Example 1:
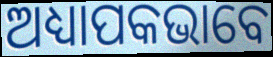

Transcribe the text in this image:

ଅଧ୍ୟାପକଭାବେ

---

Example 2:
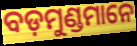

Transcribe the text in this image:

ବଡ଼ମୁଣ୍ଡମାନେ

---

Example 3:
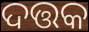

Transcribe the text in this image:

ଦତ୍ତକ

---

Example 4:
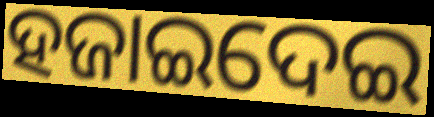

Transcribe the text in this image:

ହଜାଇଦେଇ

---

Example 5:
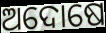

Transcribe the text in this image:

ଅଦୋଷେ